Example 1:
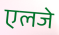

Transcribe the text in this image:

एलजे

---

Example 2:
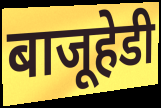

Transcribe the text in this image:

बाजूहेडी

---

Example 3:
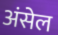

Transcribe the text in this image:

अंसेल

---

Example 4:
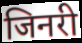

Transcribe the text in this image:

जिनरी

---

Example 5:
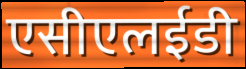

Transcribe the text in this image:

एसीएलईडी